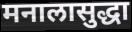
मनालासुद्धा